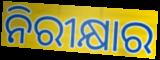
ନିରୀକ୍ଷାର